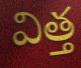
విత్త